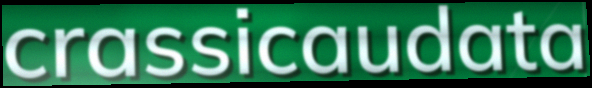
crassicaudata